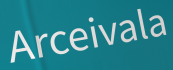
Arceivala